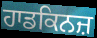
ਹਾਡਕਿਨਜ਼